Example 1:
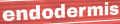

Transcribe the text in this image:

endodermis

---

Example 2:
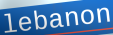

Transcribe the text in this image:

lebanon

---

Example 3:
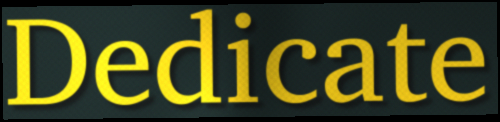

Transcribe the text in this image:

Dedicate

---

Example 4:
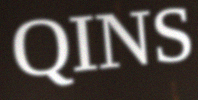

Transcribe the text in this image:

QINS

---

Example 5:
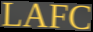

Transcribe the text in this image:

LAFC